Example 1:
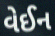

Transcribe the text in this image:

વેઈન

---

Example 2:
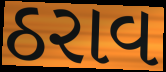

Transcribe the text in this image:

ઠરાવ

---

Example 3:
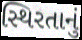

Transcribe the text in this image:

સ્થિરતાનું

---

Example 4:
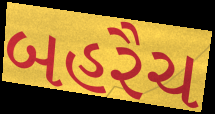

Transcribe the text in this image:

બહરૈચ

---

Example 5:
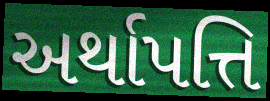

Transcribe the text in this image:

અર્થાપત્તિ